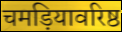
चमड़ियावरिष्ठ